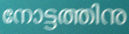
നോട്ടത്തിനു